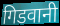
गिडवानी